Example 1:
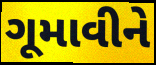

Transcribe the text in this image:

ગૂમાવીને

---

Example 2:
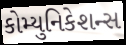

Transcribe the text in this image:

કોમ્યુનિકેશન્સ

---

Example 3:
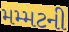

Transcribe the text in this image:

મમ્મટની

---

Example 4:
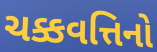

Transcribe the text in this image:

ચક્કવત્તિનો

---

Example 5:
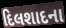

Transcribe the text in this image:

દિલશાદના